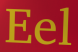
Eel